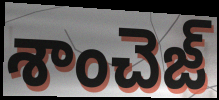
శాంచెజ్